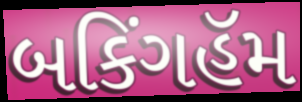
બકિંગહૅમ